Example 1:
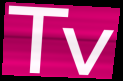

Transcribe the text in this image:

Tv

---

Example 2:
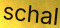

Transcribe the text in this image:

schal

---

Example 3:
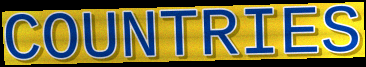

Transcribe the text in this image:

COUNTRIES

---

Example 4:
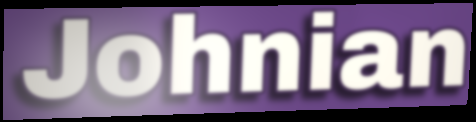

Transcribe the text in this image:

Johnian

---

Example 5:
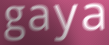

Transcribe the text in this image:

gaya